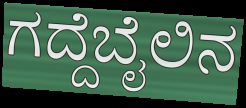
ಗದ್ದೆಬೈಲಿನ